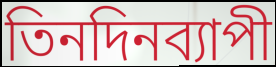
তিনদিনব্যাপী